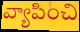
వ్యాపించి